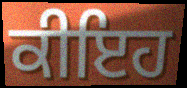
ਕੀਇਹ